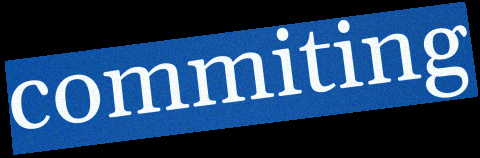
commiting